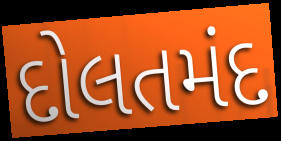
દોલતમંદ